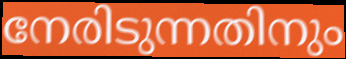
നേരിടുന്നതിനും